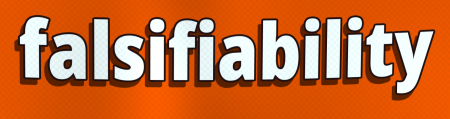
falsifiability